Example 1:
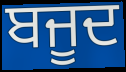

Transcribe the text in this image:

ਬਜੂਦ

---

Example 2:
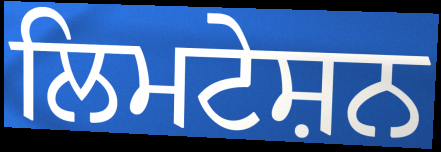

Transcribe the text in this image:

ਲਿਮਟੇਸ਼ਨ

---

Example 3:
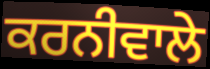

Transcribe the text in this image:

ਕਰਨੀਵਾਲੇ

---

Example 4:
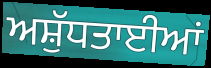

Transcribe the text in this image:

ਅਸ਼ੁੱਧਤਾਈਆਂ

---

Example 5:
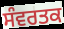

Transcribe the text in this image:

ਸੰਵਰਤਕ